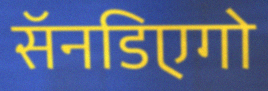
सॅनडिएगो